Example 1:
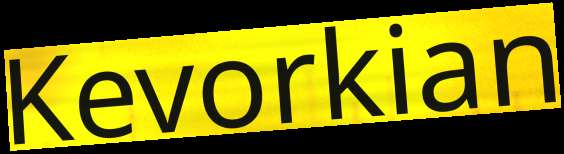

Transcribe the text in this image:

Kevorkian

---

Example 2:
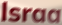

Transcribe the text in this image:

Israa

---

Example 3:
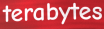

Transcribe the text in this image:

terabytes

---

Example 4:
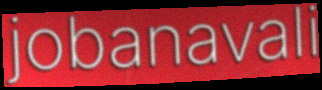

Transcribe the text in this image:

jobanavali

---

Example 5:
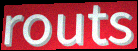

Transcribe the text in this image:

routs